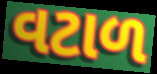
વટાળ